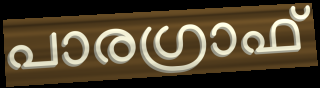
പാരഗ്രാഫ്